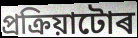
প্ৰক্ৰিয়াটোৰ